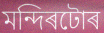
মন্দিৰটোৰ